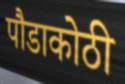
पौडाकोठी